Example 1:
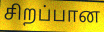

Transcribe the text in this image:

சிறப்பான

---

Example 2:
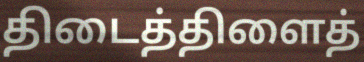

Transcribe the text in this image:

திடைத்திளைத்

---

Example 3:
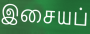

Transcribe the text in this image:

இசையப்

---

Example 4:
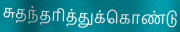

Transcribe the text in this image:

சுதந்தரித்துக்கொண்டு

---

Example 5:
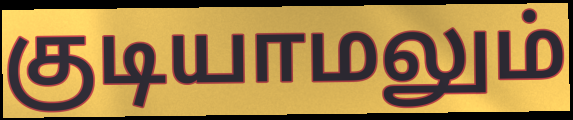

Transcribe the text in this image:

குடியாமலும்